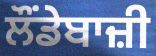
ਲੌਂਡੇਬਾਜ਼ੀ